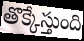
తొక్కేస్తుంది